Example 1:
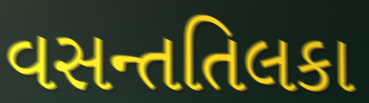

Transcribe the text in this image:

વસન્તતિલકા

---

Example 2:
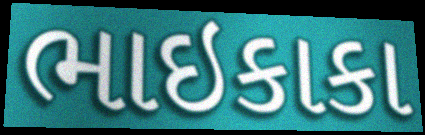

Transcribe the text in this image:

ભાઇકાકા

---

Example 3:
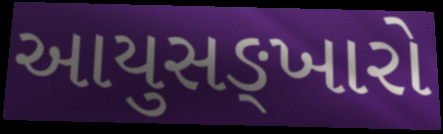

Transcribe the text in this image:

આયુસઙ્ખારો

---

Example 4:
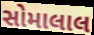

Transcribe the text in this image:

સોમાલાલ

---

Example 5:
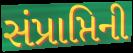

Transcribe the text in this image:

સંપ્રાપ્તિની